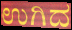
ಉಗಿದ